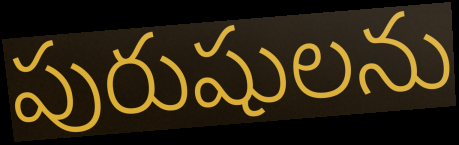
పురుషులను